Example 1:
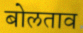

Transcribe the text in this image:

बोलताव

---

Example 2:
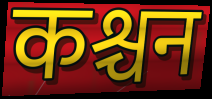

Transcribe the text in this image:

कश्चन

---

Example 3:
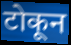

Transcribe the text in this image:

टोकून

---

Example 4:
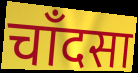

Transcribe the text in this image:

चाँदसा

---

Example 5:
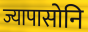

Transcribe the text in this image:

ज्यापासोनि